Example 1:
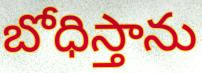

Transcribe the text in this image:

బోధిస్తాను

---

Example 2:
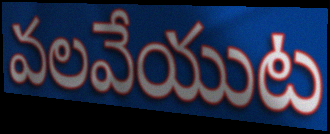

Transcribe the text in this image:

వలవేయుట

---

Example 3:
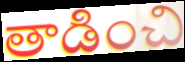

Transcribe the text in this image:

తాడించి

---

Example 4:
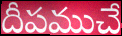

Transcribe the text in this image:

దీపముచే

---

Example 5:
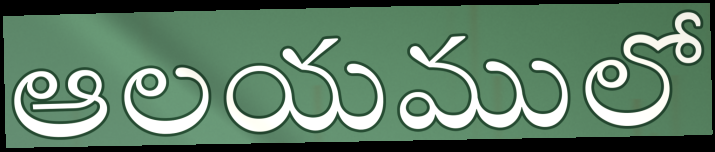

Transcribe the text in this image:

ఆలయములో